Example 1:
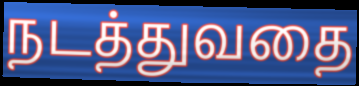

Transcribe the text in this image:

நடத்துவதை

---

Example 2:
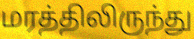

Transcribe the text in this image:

மரத்திலிருந்து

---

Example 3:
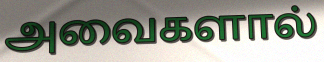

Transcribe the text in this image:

அவைகளால்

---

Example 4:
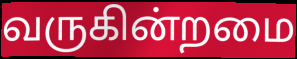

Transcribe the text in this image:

வருகின்றமை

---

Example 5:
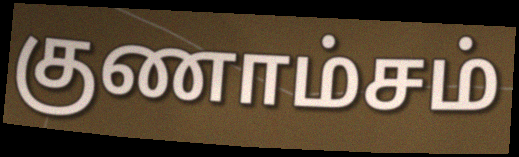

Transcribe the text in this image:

குணாம்சம்